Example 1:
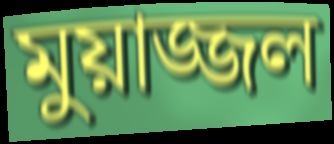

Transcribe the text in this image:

মুয়াজ্জল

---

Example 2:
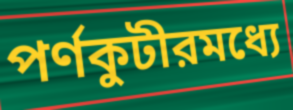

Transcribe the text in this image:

পর্ণকুটীরমধ্যে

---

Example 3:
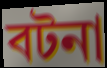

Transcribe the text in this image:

বটনা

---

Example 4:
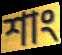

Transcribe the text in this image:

শাং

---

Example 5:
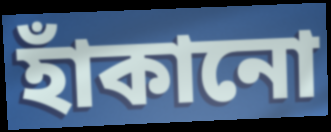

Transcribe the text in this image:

হাঁকানো